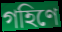
গহিণে